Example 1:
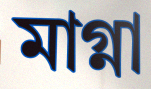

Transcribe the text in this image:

মাগ্না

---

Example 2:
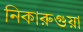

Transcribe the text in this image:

নিকারুগুয়া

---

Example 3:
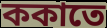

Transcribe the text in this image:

ককাতে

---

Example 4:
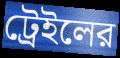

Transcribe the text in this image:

ট্রেইলের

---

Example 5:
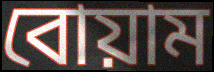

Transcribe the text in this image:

বোয়াম